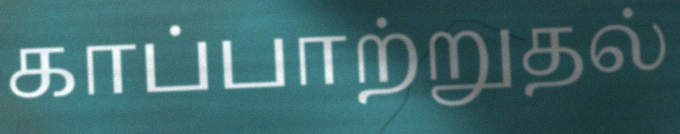
காப்பாற்றுதல்